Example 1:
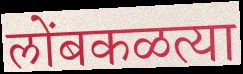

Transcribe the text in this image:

लोंबकळत्या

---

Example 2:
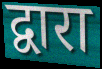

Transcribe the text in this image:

द्वारा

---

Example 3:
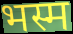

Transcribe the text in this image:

भस्म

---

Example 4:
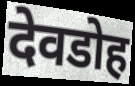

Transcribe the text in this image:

देवडोह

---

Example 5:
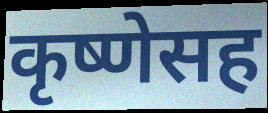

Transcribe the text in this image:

कृष्णेसह